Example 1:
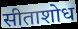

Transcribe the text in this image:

सीताशोध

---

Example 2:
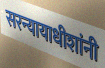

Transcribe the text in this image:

सरन्यायाधीशांनी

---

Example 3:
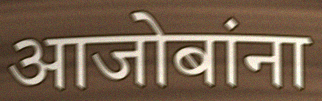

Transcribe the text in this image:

आजोबांना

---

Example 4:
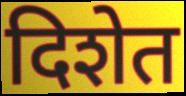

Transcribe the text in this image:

दिशेत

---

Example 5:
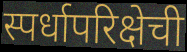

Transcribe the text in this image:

स्पर्धापरिक्षेची